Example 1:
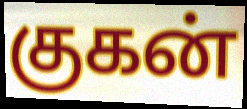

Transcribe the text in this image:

குகன்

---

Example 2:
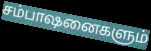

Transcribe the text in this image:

சம்பாஷனைகளும்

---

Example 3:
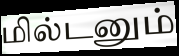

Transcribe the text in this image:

மில்டனும்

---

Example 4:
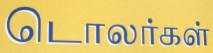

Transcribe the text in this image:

டொலர்கள்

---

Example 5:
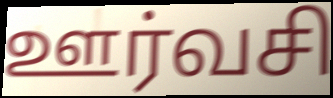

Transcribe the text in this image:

ஊர்வசி